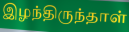
இழந்திருந்தாள்